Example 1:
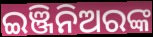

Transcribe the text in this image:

ଇଞ୍ଜିନିଅରଙ୍କ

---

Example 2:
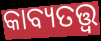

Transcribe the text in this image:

କାବ୍ୟତତ୍ତ୍ୱ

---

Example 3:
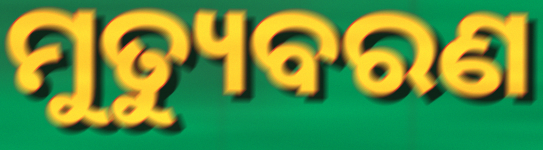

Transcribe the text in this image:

ମୁତ୍ୟୁବରଣ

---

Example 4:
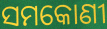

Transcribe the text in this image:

ସମକୋଣୀ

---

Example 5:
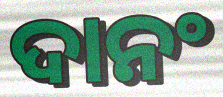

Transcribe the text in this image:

ଦାନଂ